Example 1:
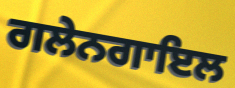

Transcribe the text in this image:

ਗਲੇਨਗਾਇਲ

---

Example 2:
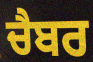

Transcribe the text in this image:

ਚੈਬਰ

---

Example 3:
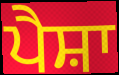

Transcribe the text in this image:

ਪੈਸ਼ਾ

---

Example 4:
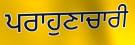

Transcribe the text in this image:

ਪਰਾਹੁਣਾਚਾਰੀ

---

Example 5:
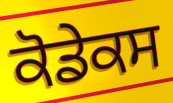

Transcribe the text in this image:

ਕੋਡੇਕਸ